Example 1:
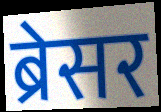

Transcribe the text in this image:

ब्रेसर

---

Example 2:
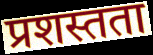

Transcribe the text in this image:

प्रशस्तता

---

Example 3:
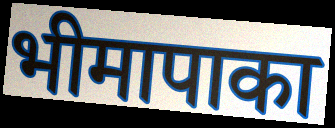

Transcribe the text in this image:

भीमापाका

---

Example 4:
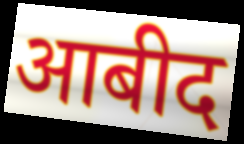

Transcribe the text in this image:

आबीद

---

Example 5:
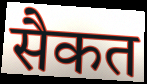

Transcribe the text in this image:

सैकत